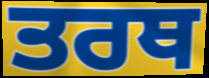
ਤਰਥ